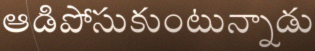
ఆడిపోసుకుంటున్నాడు